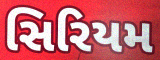
સિરિયમ